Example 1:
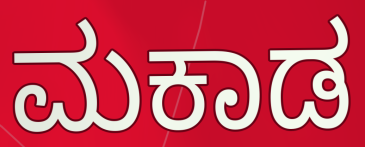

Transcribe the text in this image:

ಮಕಾಡ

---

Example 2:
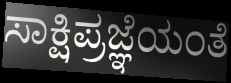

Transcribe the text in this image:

ಸಾಕ್ಷಿಪ್ರಜ್ಞೆಯಂತೆ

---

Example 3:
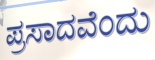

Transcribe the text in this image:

ಪ್ರಸಾದವೆಂದು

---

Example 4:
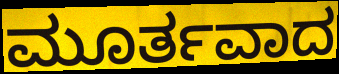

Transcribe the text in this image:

ಮೂರ್ತವಾದ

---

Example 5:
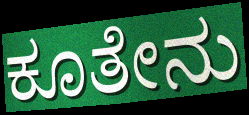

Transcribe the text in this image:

ಕೂತೇನು